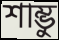
শাম্ভু